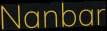
Nanbar